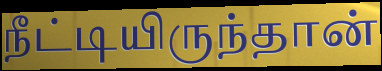
நீட்டியிருந்தான்